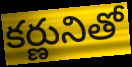
కర్ణునితో